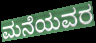
ಮನೆಯವರ